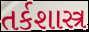
તર્કશાસ્ત્ર